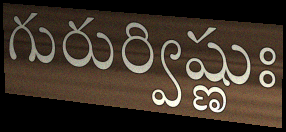
గురుర్విష్ణుః